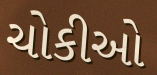
ચોકીઓ